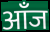
आँज